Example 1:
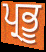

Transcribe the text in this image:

ਪ੍ਰਭੂ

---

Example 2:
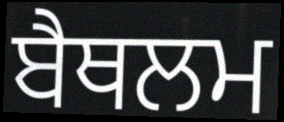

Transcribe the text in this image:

ਬੈਥਲਮ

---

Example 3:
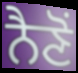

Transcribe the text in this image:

ਨੈਣੋਂ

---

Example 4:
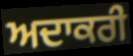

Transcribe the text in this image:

ਅਦਾਕਰੀ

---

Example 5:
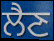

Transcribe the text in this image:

ਲੈਣ